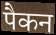
पैकन